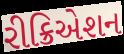
રીક્રિએશન